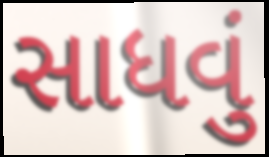
સાધવું